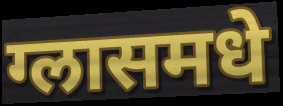
ग्लासमधे